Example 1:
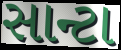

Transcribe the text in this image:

સાન્ટા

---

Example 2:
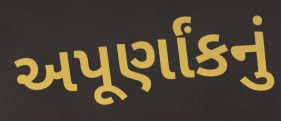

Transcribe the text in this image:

અપૂર્ણાંકનું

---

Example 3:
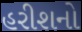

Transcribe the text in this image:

હરીશનો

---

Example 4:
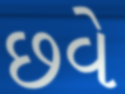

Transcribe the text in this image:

છવે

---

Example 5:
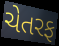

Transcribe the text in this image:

ચેતરફ